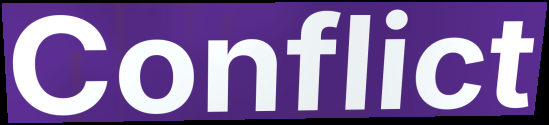
Conflict